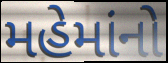
મહેમાંનો